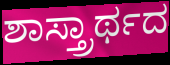
ಶಾಸ್ತ್ರಾರ್ಥದ